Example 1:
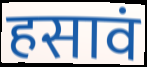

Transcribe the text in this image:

हसावं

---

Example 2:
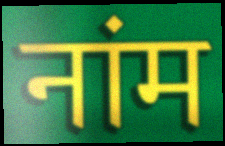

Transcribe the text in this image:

नांम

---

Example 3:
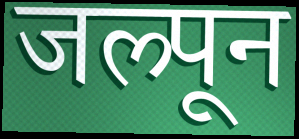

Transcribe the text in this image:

जल्पून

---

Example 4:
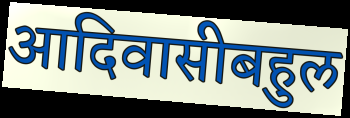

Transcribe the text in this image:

आदिवासीबहुल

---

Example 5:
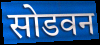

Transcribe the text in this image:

सोडवन